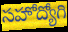
సహోద్యోగి